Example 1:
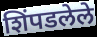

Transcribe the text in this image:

शिंपडलेले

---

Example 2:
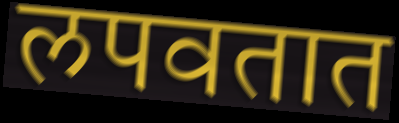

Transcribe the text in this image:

लपवतात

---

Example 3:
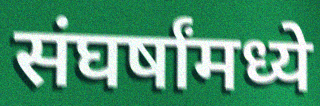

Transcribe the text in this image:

संघर्षांमध्ये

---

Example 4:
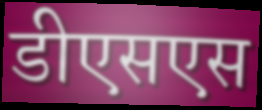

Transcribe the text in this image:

डीएसएस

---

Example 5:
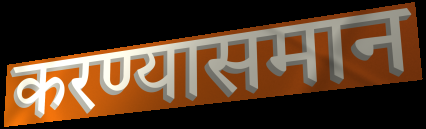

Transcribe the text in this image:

करण्यासमान